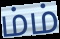
ம்ம்